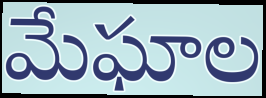
మేఘాల